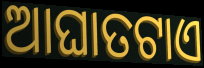
ଆଘାତଟାଏ